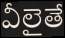
వీలైతే